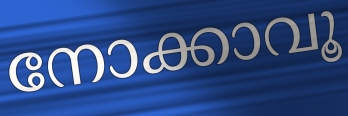
നോക്കാവൂ